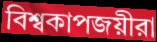
বিশ্বকাপজয়ীরা